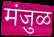
मंजुळ